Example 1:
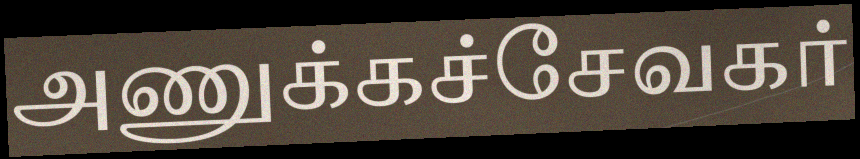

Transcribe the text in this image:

அணுக்கச்சேவகர்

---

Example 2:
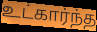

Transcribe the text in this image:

உட்கார்ந்த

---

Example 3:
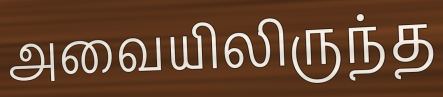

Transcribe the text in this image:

அவையிலிருந்த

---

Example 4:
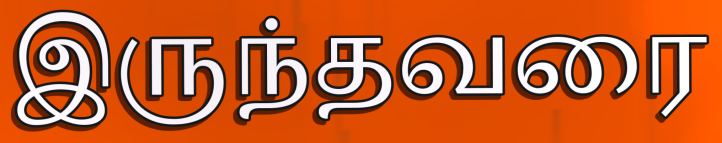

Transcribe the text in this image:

இருந்தவரை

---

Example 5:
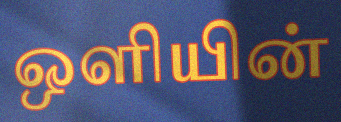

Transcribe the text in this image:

ஒளியின்